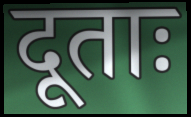
दूताः